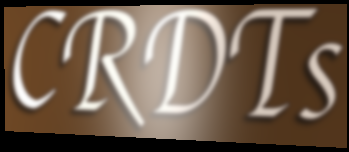
CRDTs